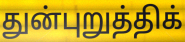
துன்புறுத்திக்